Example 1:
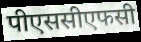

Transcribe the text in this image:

पीएससीएफसी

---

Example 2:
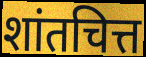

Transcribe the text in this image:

शांतचित्त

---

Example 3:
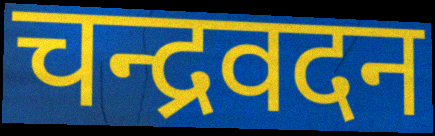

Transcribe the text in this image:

चन्द्रवदन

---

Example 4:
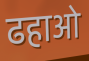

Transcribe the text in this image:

ढहाओ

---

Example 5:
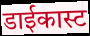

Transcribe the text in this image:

डाईकास्ट